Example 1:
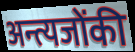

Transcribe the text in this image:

अन्त्यजोंकी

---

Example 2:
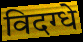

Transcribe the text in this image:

विदग्धे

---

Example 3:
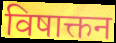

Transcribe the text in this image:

विषाक्तन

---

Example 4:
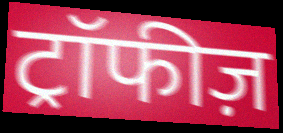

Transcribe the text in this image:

ट्रॉफीज़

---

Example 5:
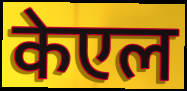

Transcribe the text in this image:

केएल